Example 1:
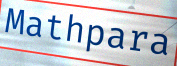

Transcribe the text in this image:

Mathpara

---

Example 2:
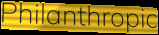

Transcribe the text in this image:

Philanthropic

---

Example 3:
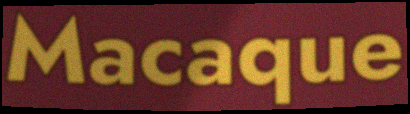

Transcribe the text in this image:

Macaque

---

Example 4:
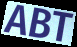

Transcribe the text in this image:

ABT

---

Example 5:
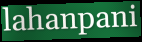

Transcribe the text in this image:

lahanpani